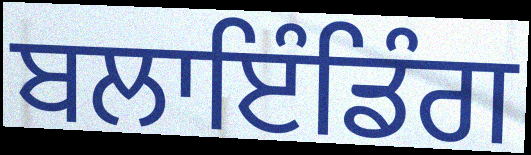
ਬਲਾਇੰਡਿੰਗ